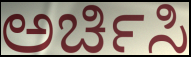
ಅರ್ಚಿಸಿ